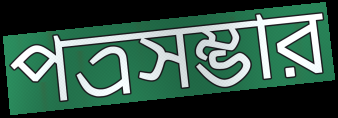
পত্রসম্ভার